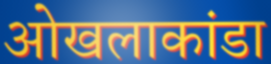
ओखलाकांडा